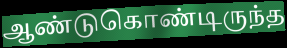
ஆண்டுகொண்டிருந்த